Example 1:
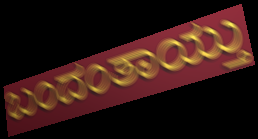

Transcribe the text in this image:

ಬಂದಂತಾಯ್ತು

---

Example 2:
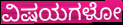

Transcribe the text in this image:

ವಿಷಯಗಳೋ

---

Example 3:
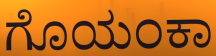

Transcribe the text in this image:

ಗೊಯಂಕಾ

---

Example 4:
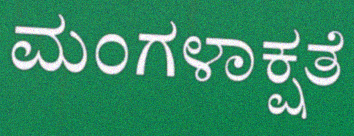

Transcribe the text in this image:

ಮಂಗಳಾಕ್ಷತೆ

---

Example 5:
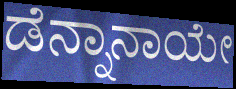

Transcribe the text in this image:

ಡೆನ್ನಾನಾಯೇ